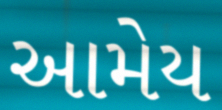
આમેય